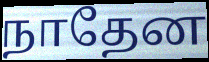
நாதேன